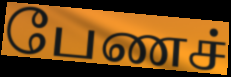
பேணச்